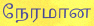
நேரமான